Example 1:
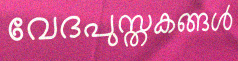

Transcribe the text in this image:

വേദപുസ്തകങ്ങൾ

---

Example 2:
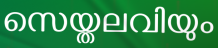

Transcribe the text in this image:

സെയ്തലവിയും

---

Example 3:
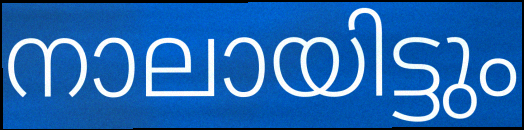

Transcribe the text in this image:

നാലായിട്ടും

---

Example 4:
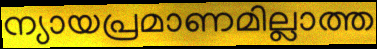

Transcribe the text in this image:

ന്യായപ്രമാണമില്ലാത്ത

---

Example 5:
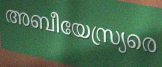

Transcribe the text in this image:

അബീയേസ്ര്യരെ